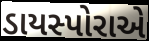
ડાયસ્પોરાએ